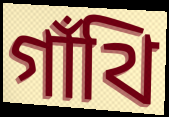
গাঁথি